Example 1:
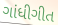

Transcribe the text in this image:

ગાંધીગીત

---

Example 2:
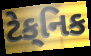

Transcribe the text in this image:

ટેક્‌નિક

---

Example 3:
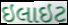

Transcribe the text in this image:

ઇલાઇટ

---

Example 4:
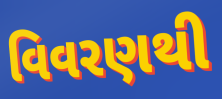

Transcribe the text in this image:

વિવરણથી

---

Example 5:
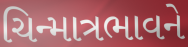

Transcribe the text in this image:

ચિન્માત્રભાવને